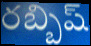
రబ్బిష్